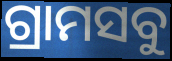
ଗ୍ରାମସବୁ